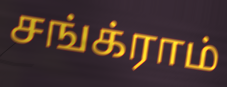
சங்க்ராம்